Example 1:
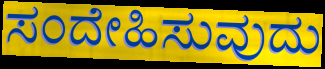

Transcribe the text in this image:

ಸಂದೇಹಿಸುವುದು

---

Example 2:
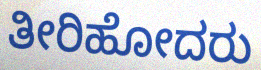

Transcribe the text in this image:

ತೀರಿಹೋದರು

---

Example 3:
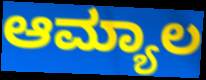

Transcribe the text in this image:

ಆಮ್ಯಾಲ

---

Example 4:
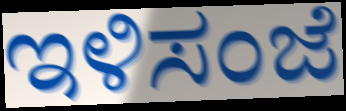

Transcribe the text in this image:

ಇಳಿಸಂಜೆ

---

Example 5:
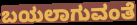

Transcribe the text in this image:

ಬಯಲಾಗುವಂತೆ